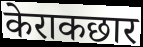
केराकछार